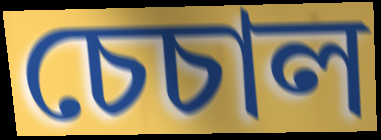
চেচাল